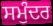
ਸਮੁੰਦਰ